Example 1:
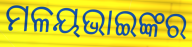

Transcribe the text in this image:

ମଳୟଭାଇଙ୍କର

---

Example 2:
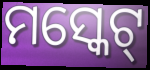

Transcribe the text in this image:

ମସ୍କେଟ୍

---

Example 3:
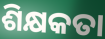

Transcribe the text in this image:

ଶିକ୍ଷକତା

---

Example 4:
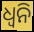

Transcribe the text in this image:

ଧ୍ୱନି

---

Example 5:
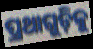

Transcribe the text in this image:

ପ୍ରଥାଗୁଡ଼ିକୁ